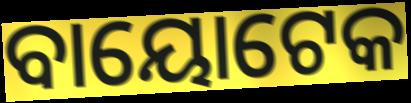
ବାୟୋଟେକ